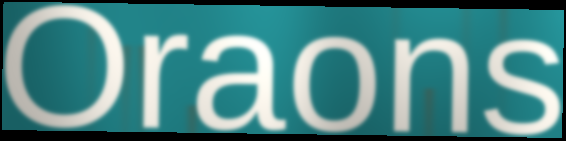
Oraons